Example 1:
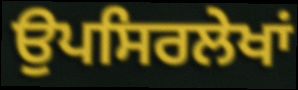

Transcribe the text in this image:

ਉਪਸਿਰਲੇਖਾਂ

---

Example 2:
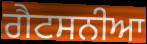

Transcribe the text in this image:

ਗੈਟਸਨੀਆ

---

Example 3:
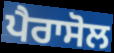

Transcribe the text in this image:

ਪੈਰਾਸੋਲ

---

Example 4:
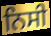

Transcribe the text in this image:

ਨਿਸੀ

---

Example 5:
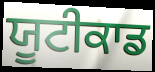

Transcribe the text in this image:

ਯੂਟੀਕਾਡ